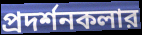
প্রদর্শনকলার